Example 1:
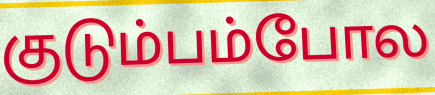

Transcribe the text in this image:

குடும்பம்போல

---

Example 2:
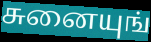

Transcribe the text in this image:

சுனையுங்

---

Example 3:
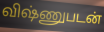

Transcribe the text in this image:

விஷ்ணுபடன்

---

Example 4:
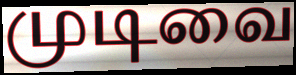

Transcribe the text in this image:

முடிவை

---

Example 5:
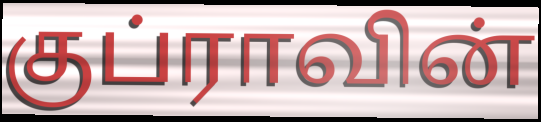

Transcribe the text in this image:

குப்ராவின்